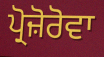
ਪ੍ਰੋਜ਼ੋਰੋਵਾ